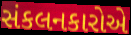
સંકલનકારોએ